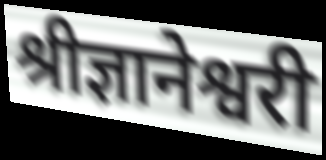
श्रीज्ञानेश्वरी